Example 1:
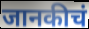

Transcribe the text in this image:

जानकीचं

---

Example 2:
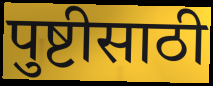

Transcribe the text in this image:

पुष्टीसाठी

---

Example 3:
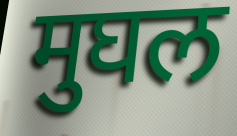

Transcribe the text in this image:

मुघल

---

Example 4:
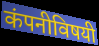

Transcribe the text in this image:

कंपनीविषयी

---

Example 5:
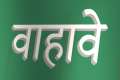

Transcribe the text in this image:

वाहावे